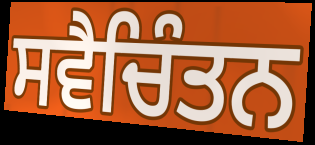
ਸਵੈਚਿੰਤਨ